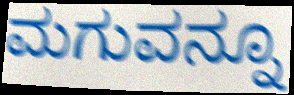
ಮಗುವನ್ನೂ